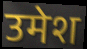
उमेश